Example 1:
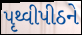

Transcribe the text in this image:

પૃથ્વીપીઠને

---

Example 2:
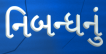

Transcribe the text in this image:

નિબન્ધનું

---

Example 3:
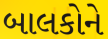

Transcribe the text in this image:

બાલકોને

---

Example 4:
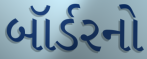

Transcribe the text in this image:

બૉર્ડરનો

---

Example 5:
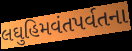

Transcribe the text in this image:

લઘુહિમવંતપર્વતના